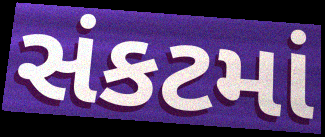
સંકટમાં